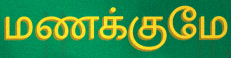
மணக்குமே